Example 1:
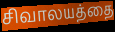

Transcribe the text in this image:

சிவாலயத்தை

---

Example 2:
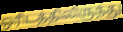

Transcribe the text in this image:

ஒரிடத்திலிருந்து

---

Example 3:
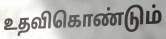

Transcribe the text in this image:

உதவிகொண்டும்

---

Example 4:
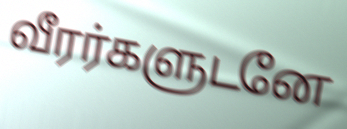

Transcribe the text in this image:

வீரர்களுடனே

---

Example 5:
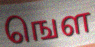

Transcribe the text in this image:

ஙௌ